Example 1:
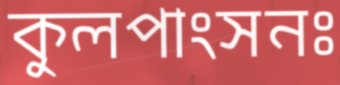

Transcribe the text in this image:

কুলপাংসনঃ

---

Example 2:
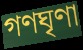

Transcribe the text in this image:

গণঘৃণা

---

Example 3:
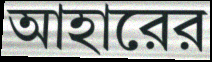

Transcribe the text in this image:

আহারের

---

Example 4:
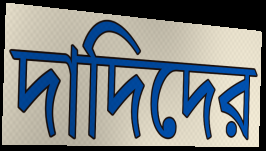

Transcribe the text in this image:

দাদিদের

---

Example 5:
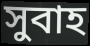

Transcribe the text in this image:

সুবাহ